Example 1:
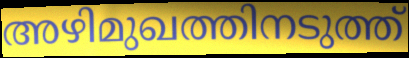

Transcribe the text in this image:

അഴിമുഖത്തിനടുത്ത്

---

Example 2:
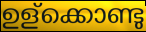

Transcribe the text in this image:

ഉള്ക്കൊണ്ടു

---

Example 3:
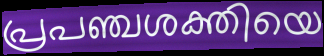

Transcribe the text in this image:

പ്രപഞ്ചശക്തിയെ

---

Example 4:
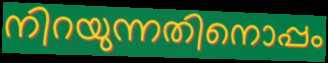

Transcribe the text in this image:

നിറയുന്നതിനൊപ്പം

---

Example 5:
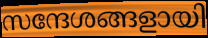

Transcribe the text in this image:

സന്ദേശങ്ങളായി